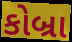
કોબ્રા